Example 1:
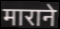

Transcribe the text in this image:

माराने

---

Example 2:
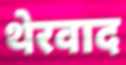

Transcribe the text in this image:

थेरवाद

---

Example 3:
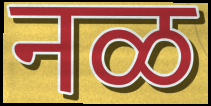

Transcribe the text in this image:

नळ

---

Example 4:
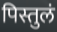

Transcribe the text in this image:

पिस्तुलं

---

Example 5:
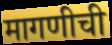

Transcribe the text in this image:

मागणीची